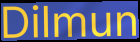
Dilmun